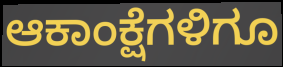
ಆಕಾಂಕ್ಷೆಗಳಿಗೂ